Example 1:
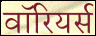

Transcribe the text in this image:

वॉरियर्स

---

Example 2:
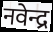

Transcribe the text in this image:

नवेन्द्र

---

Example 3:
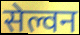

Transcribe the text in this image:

सेल्वन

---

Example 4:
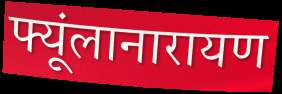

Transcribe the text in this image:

फ्यूंलानारायण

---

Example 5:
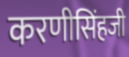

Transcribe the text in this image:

करणीसिंहजी